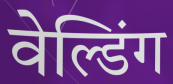
वेल्डिंग